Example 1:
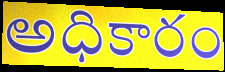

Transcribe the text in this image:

అధికారం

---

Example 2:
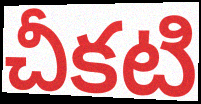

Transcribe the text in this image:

చీకటి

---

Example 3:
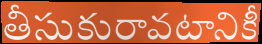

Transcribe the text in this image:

తీసుకురావటానికీ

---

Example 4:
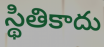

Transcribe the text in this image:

స్థితికాదు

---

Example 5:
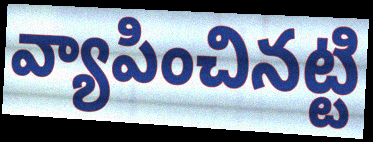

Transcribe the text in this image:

వ్యాపించినట్టి